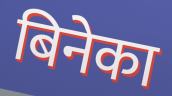
बिनेका